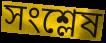
সংশ্লেষ